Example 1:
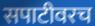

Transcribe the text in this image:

सपाटीवरच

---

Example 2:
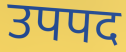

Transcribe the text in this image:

उपपद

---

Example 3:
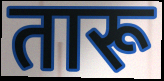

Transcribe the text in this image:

तारू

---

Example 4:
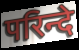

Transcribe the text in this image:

परिन्दे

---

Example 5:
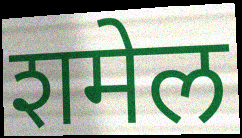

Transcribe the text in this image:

शमेल